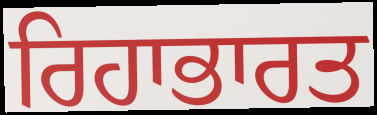
ਰਿਹਾਭਾਰਤ